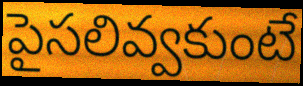
పైసలివ్వకుంటే